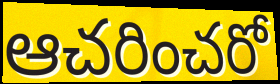
ఆచరించరో